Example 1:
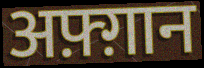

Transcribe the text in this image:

अफ़्ग़ान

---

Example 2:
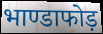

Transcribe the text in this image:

भाण्डाफोड़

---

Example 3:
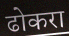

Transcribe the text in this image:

ढोकरा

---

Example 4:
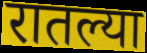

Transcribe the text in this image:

रातल्या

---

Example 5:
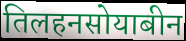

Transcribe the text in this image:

तिलहनसोयाबीन